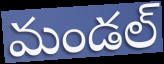
మండల్